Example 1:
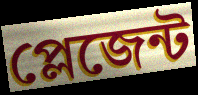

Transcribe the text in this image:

প্লেজেন্ট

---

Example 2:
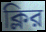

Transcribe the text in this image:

ক্লির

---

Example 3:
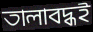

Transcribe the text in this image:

তালাবদ্ধই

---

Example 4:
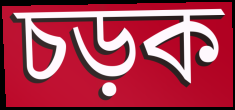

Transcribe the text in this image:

চড়ক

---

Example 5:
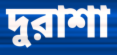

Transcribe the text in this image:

দুরাশা